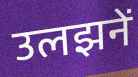
उलझनें